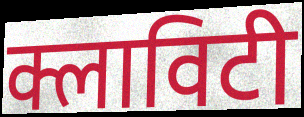
क्लाविटी